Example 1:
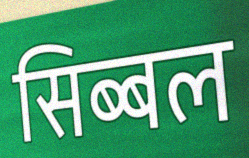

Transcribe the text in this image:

सिब्बल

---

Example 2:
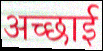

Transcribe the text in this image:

अच्छाई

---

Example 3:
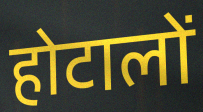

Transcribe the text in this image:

होटालों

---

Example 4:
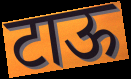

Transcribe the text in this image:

टाऊ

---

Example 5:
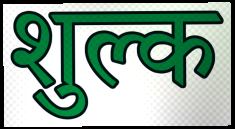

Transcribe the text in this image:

शुल्क